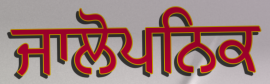
ਜਾਲੋਪਨਿਕ